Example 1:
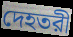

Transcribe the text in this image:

দেহতরী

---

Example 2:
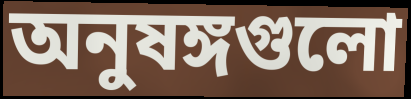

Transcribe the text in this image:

অনুষঙ্গগুলো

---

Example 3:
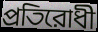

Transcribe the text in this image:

প্রতিরোধী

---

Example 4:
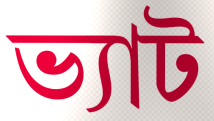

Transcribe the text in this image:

ভ্যাট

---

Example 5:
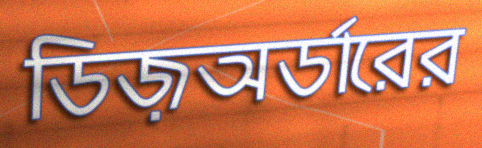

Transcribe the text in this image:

ডিজ়অর্ডারের